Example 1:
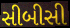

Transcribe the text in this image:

સીબીસી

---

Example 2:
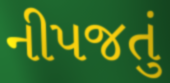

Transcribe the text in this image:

નીપજતું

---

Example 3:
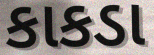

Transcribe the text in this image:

કાકડા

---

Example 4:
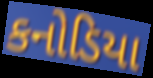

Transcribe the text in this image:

કનોડિયા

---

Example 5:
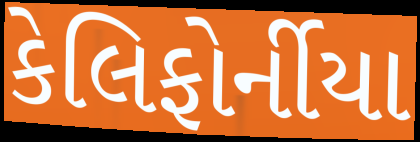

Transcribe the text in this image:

કેલિફોર્નીયા